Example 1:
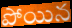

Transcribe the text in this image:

పోయిన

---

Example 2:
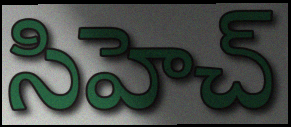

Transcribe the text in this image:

సిహెచ్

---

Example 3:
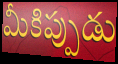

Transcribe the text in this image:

మీకిప్పుడు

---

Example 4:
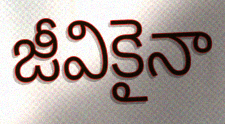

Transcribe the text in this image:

జీవికైనా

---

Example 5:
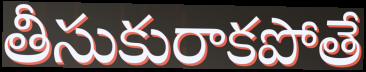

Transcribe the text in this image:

తీసుకురాకపోతే